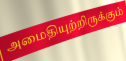
அமைதியுற்றிருக்கும்